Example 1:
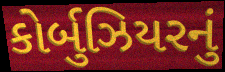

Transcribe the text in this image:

કોર્બુઝિયરનું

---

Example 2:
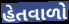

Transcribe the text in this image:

હેતવાળો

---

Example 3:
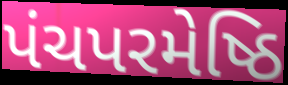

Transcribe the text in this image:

પંચપરમેષ્ઠિ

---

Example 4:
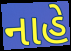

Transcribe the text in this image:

નાહે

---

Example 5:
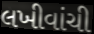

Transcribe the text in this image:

લખીવાંચી